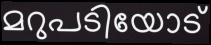
മറുപടിയോട്